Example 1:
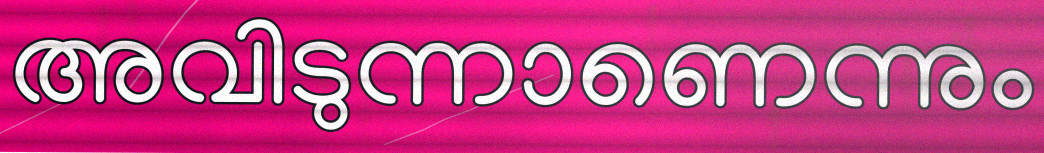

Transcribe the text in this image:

അവിടുന്നാണെന്നും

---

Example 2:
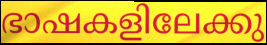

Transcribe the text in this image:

ഭാഷകളിലേക്കു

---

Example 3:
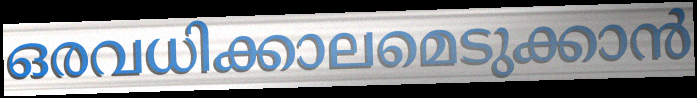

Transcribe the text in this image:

ഒരവധിക്കാലമെടുക്കാൻ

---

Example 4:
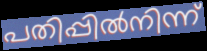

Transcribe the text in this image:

പതിപ്പിൽനിന്ന്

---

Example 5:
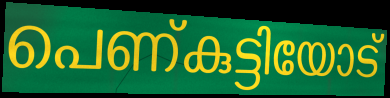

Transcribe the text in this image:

പെണ്കുട്ടിയോട്